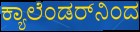
ಕ್ಯಾಲೆಂಡರ್‌ನಿಂದ